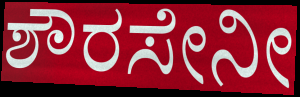
ಶೌರಸೇನೀ